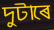
দুটাৰে